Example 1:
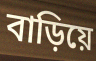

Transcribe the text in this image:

বাড়িয়ে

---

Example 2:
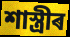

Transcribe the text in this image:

শাস্ত্ৰীৰ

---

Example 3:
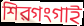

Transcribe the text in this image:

শিৱগংগাই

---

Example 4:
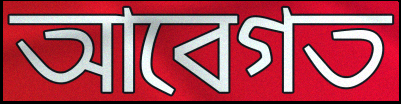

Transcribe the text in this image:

আবেগত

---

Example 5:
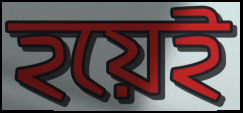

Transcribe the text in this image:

হয়েই